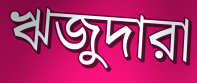
ঋজুদারা